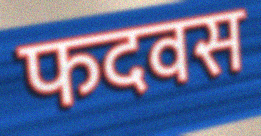
फदवस